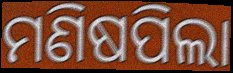
ମଣିଷପିଲା